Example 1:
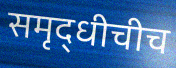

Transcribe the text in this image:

समृद्धीचीच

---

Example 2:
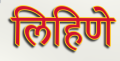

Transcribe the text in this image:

लिहिणे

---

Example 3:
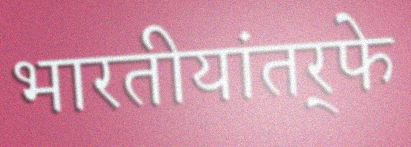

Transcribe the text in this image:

भारतीयांतर्फे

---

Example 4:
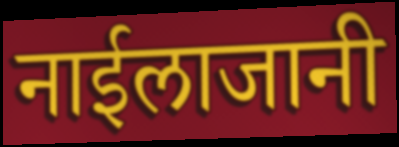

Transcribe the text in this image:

नाईलाजानी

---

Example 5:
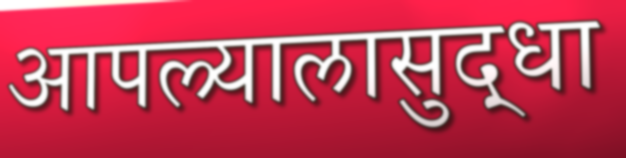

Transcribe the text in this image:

आपल्यालासुद्धा